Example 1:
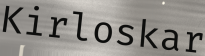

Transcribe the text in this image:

Kirloskar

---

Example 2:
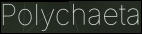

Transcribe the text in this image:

Polychaeta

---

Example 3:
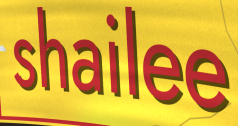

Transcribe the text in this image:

shailee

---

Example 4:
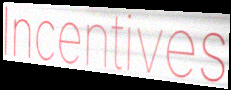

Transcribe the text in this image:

Incentives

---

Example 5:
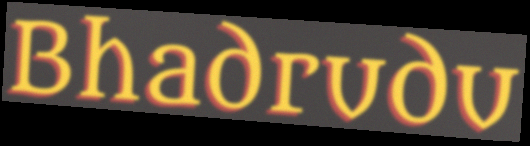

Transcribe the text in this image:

Bhadrudu